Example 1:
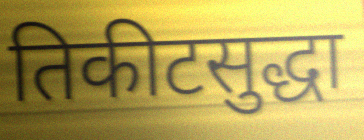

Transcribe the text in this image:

तिकीटसुद्धा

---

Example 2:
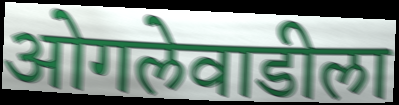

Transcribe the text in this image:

ओगलेवाडीला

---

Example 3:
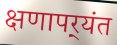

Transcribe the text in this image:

क्षणापर्यंत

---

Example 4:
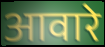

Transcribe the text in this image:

आवारे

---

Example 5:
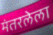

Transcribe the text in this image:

मंतरलेला